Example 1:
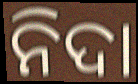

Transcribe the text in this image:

ନିଦା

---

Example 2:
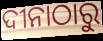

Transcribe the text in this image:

ଦୀନାଠାରୁ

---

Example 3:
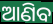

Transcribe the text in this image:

ଆଣିବ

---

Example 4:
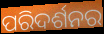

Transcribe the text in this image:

ପରିଦର୍ଶନର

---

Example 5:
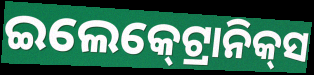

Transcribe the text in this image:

ଇଲେକ୍‍ଟ୍ରୋନିକ୍‍ସ